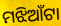
ମଝିଆଁଟା